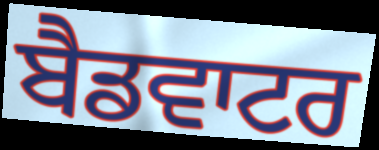
ਬੈਡਵਾਟਰ